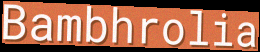
Bambhrolia